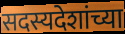
सदस्यदेशांच्या